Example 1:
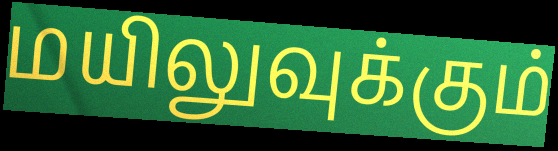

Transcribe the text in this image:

மயிலுவுக்கும்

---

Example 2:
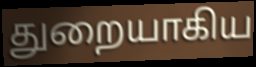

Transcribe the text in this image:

துறையாகிய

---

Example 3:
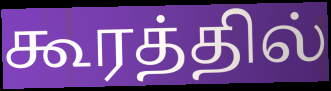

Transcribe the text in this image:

கூரத்தில்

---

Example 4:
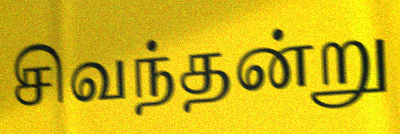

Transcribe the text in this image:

சிவந்தன்று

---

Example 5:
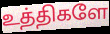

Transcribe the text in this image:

உத்திகளே